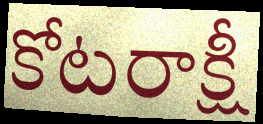
కోటరాక్షీ